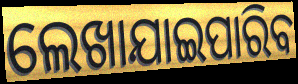
ଲେଖାଯାଇପାରିବ